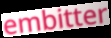
embitter